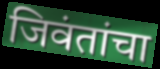
जिवंतांचा